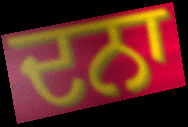
ਦਨਾ